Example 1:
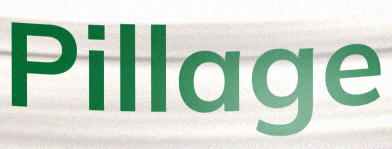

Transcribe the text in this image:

Pillage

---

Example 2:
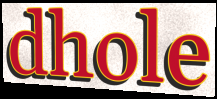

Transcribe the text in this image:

dhole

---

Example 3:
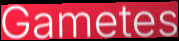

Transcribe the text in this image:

Gametes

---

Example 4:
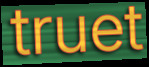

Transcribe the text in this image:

truet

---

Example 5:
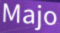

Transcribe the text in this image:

Majo